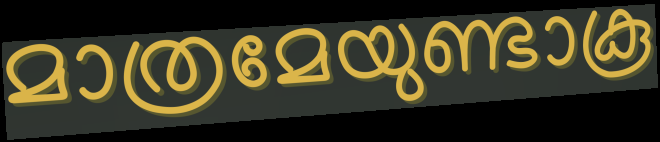
മാത്രമേയുണ്ടാകൂ